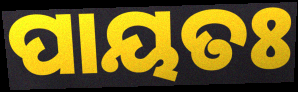
ପାୟତଃ